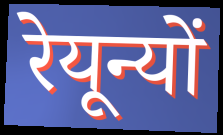
रेयून्यों